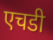
एचडी